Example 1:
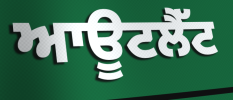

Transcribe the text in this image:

ਆਊਟਲੈੱਟ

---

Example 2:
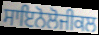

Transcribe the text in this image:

ਸਾਇਨੋਲੋਜੀਕਲ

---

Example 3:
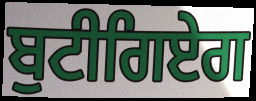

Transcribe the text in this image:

ਬੁਟੀਗਿਏਗ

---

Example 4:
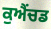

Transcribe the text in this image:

ਕੁਐਂਚਡ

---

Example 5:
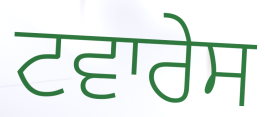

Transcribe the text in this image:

ਟਵਾਰੇਸ